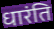
धारंति